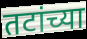
तटांच्या